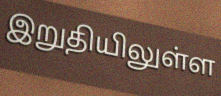
இறுதியிலுள்ள